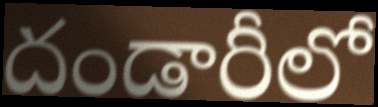
దండారీలో